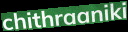
chithraaniki